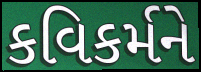
કવિકર્મને